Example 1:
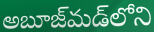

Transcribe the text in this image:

అబూజ్‌మడ్‌లోని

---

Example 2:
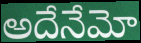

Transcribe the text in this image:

అదేనేమో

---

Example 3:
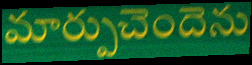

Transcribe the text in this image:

మార్పుచెందెను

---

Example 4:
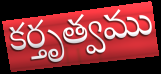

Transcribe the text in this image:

కర్తృత్వము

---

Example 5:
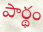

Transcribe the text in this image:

పార్థం